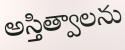
అస్తిత్వాలను